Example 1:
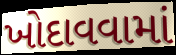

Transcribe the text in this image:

ખોદાવવામાં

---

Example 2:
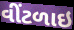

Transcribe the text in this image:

વીંટળાઇ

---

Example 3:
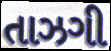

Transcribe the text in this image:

તાઝગી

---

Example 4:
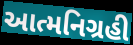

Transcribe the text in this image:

આત્મનિગ્રહી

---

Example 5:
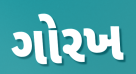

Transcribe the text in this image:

ગોરખ